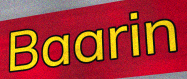
Baarin